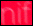
nif